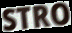
STRO